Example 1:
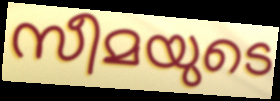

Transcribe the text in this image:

സീമയുടെ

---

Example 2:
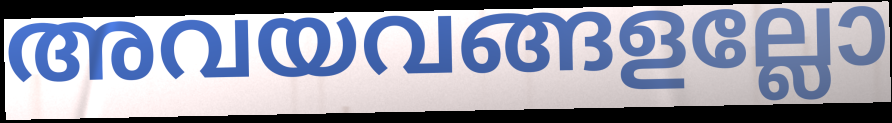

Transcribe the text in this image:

അവയവങ്ങളല്ലോ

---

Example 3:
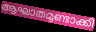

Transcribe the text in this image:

ആഘാതമുണ്ടാക്കി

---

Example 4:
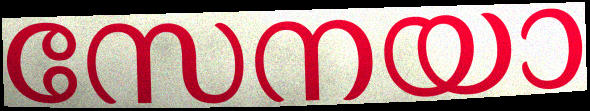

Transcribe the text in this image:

സേനയാ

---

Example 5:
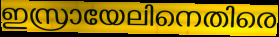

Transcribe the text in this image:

ഇസ്രായേലിനെതിരെ